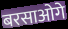
बरसाओगे